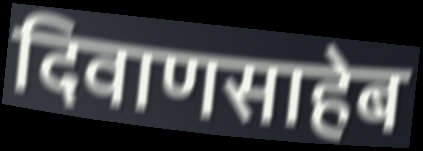
दिवाणसाहेब